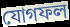
যোগফল